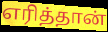
எரித்தான்